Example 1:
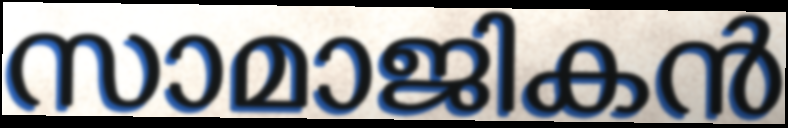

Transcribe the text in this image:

സാമാജികൻ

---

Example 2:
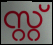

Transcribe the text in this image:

സ്റ്റ്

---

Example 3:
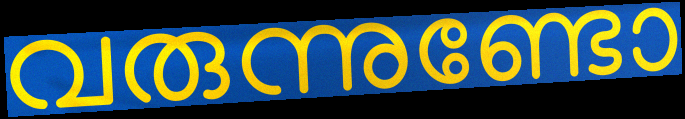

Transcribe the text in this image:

വരുന്നുണ്ടോ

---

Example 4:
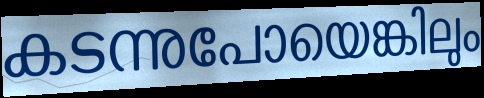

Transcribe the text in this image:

കടന്നുപോയെങ്കിലും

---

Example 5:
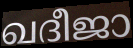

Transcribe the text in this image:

ഖദീജാ